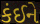
કંઈને